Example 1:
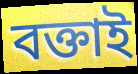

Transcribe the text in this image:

বক্তাই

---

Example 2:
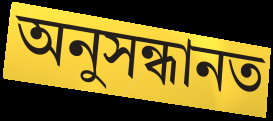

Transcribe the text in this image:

অনুসন্ধানত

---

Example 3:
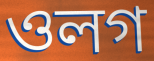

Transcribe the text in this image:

ওলগ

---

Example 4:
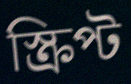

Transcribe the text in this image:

স্ক্ৰিপ্ট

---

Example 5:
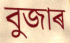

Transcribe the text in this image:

বুজাৰ